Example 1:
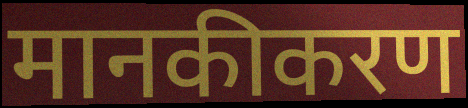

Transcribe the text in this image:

मानकीकरण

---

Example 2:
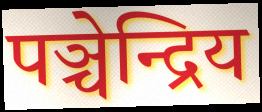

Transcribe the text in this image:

पञ्चेन्द्रिय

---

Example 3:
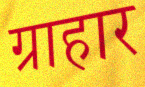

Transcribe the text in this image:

ग्राहार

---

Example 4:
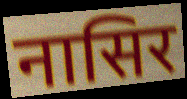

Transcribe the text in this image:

नासिर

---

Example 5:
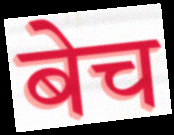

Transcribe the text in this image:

बेच